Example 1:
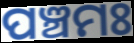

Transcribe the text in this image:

ପଞ୍ଚମଃ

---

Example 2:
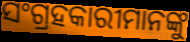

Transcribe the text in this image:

ସଂଗ୍ରହକାରୀମାନଙ୍କୁ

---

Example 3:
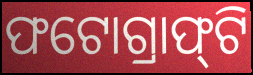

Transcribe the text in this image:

ଫଟୋଗ୍ରାଫ୍‌ଟି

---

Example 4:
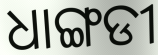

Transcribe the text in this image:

ଧାଙ୍ଗଡୀ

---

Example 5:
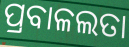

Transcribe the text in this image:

ପ୍ରବାଳଲତା